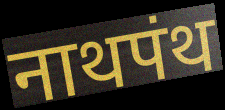
नाथपंथ